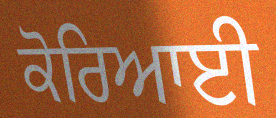
ਕੋਰਿਆਈ